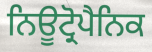
ਨਿਊਟ੍ਰੋਪੈਨਿਕ